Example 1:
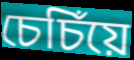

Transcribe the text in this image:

চেচিঁয়ে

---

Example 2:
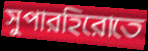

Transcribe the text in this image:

সুপারহিরোতে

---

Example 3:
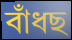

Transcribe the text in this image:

বাঁধছ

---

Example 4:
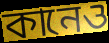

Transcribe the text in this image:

কানেও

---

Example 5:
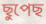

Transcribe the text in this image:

ছুপেছ